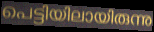
പെട്ടിയിലായിരുന്നു